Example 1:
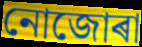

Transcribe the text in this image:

নোজোৰা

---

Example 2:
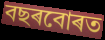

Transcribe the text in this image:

বছৰবোৰত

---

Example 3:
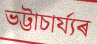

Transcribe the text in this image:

ভট্টাচাৰ্য্যৰ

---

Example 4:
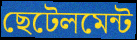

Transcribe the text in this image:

ছেটেলমেন্ট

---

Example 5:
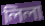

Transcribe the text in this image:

লিলা